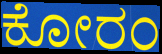
ಕೋರಂ